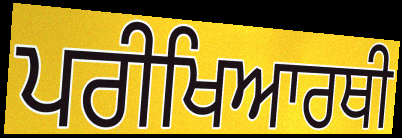
ਪਰੀਖਿਆਰਥੀ